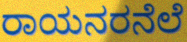
ರಾಯನರನೆಲೆ